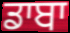
ਡਾਬਾ